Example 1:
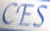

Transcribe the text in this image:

CES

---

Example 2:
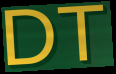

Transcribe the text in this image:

DT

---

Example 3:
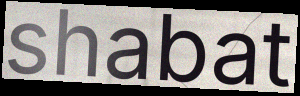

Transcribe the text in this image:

shabat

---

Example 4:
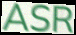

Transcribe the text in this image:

ASR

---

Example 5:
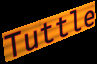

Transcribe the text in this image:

Tuttle